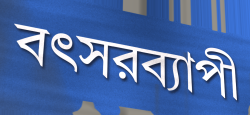
বৎসরব্যাপী